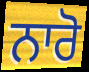
ਨਾਰੋ